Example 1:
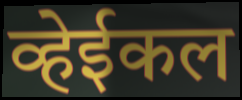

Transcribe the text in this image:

व्हेईकल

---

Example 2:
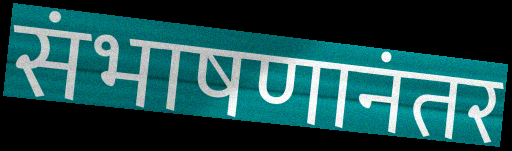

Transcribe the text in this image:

संभाषणानंतर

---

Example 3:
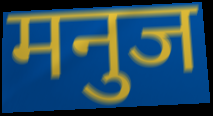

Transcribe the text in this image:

मनुज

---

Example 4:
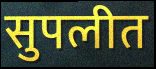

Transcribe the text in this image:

सुपलीत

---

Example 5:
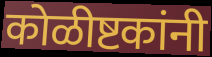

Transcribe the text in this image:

कोळीष्टकांनी